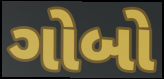
ગોબો